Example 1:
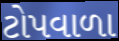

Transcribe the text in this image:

ટોપવાળા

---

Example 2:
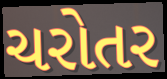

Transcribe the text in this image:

ચરોતર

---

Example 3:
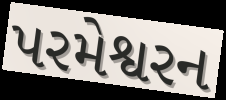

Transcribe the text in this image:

પરમેશ્વરન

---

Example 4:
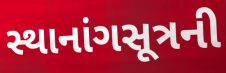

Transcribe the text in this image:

સ્થાનાંગસૂત્રની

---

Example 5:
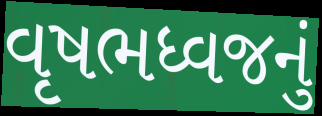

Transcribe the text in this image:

વૃષભધ્વજનું